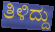
ತಿಳಿದ್ದು